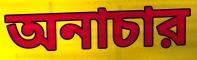
অনাচার